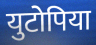
युटोपिया